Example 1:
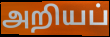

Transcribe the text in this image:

அறியப்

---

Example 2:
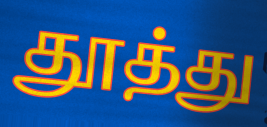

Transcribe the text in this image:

தூத்து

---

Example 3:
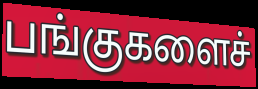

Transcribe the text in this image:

பங்குகளைச்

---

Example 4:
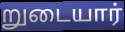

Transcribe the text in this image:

றுடையார்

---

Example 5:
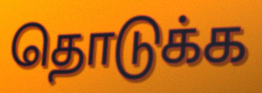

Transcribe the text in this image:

தொடுக்க